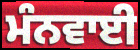
ਮੰਨਵਾਈ